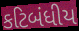
કટિબંધીય